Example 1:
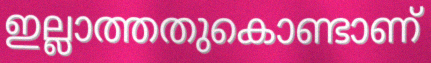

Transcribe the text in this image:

ഇല്ലാത്തതുകൊണ്ടാണ്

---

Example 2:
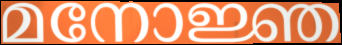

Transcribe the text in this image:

മനോജ്ഞ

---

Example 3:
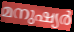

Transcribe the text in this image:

മനുഷ്യർ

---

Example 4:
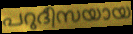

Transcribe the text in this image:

പറുദീസയായ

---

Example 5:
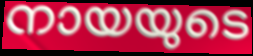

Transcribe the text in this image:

നായയുടെ